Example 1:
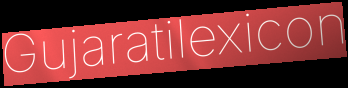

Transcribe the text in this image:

Gujaratilexicon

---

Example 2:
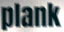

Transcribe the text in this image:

plank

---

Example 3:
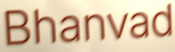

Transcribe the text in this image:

Bhanvad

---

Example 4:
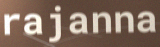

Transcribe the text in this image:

rajanna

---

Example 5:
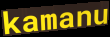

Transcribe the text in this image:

kamanu